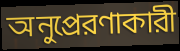
অনুপ্রেরণাকারী